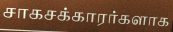
சாகசக்காரர்களாக